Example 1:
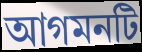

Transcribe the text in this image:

আগমনটি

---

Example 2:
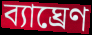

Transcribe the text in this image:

ব্যাঘ্রেণ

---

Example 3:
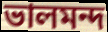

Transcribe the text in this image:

ভালমন্দ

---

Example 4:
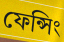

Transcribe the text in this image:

ফেন্সিং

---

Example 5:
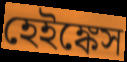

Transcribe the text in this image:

হেইঙ্কেস